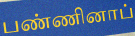
பண்ணினாப்